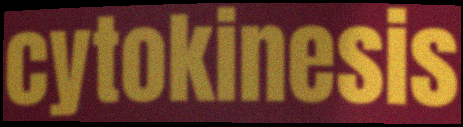
cytokinesis